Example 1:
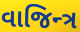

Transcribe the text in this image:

વાજિન્ત્ર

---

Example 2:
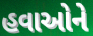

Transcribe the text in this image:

હવાઓને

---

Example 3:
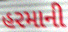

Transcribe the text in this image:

હરમાની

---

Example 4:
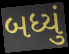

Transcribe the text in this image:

બધ્યું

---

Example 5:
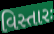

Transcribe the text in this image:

વિસ્તારઃ